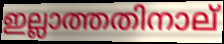
ഇല്ലാത്തതിനാല്